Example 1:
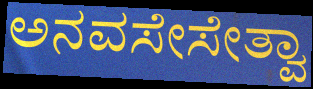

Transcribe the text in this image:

ಅನವಸೇಸೇತ್ವಾ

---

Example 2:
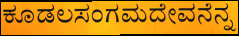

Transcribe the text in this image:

ಕೂಡಲಸಂಗಮದೇವನೆನ್ನ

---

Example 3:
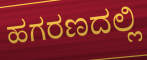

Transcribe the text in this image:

ಹಗರಣದಲ್ಲಿ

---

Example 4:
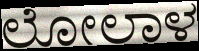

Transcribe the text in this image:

ಲೋಲಾಳ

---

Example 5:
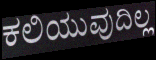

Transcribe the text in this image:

ಕಲಿಯುವುದಿಲ್ಲ